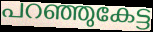
പറഞ്ഞുകേട്ട